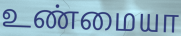
உண்மையா